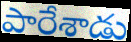
పారేశాడు